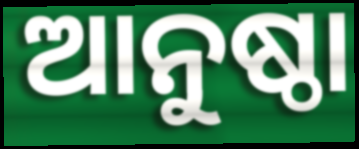
ଆନୁଷ୍ଠା